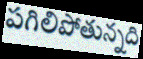
పగిలిపోతున్నది